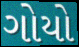
ગોયો